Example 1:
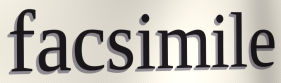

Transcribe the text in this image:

facsimile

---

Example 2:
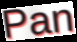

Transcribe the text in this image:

Pan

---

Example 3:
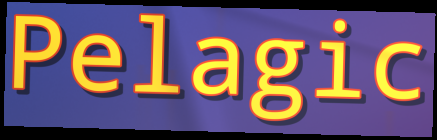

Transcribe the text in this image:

Pelagic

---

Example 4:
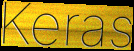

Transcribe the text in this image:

Keras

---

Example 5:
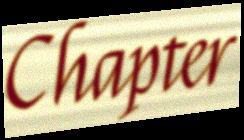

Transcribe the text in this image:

Chapter